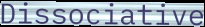
Dissociative